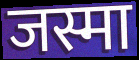
जस्मा